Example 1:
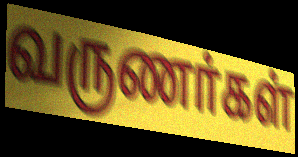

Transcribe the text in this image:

வருணர்கள்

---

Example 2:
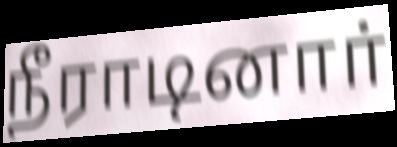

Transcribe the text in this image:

நீராடினார்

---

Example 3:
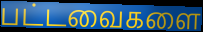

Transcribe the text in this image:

பட்டவைகளை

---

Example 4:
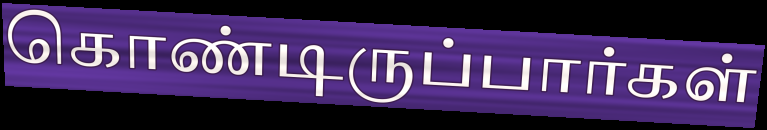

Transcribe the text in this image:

கொண்டிருப்பார்கள்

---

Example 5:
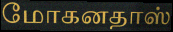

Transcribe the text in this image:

மோகனதாஸ்